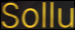
Sollu